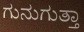
ಗುನುಗುತ್ತಾ